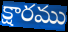
క్షారము